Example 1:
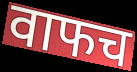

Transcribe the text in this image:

वाफच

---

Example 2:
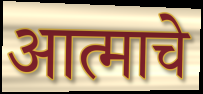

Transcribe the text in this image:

आत्माचे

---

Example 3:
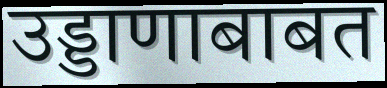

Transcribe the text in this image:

उड्डाणाबाबत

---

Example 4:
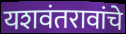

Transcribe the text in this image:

यशवंतरावांचे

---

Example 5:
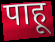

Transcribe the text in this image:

पाहू